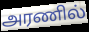
அரணில்